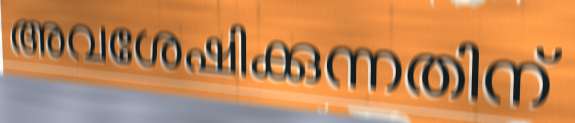
അവശേഷിക്കുന്നതിന്